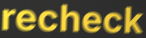
recheck